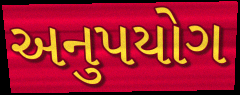
અનુપયોગ